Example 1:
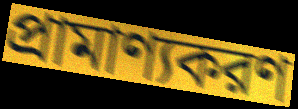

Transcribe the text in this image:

প্রামাণ্যকরণ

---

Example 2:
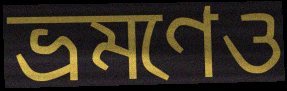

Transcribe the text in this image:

ভ্রমণেও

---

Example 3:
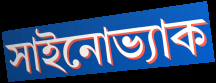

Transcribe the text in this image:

সাইনোভ্যাক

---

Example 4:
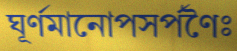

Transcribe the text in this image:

ঘূর্ণমানোপসর্পণৈঃ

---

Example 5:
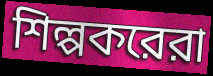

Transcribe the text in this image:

শিল্পকরেরা